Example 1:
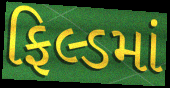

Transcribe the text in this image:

ફિલ્ડમાં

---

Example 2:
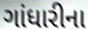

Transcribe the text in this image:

ગાંધારીના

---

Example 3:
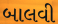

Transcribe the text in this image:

બાલવી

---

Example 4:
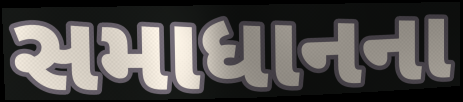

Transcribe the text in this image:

સમાધાનના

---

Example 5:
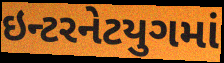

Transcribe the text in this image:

ઇન્ટરનેટયુગમાં